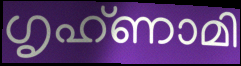
ഗൃഹ്ണാമി